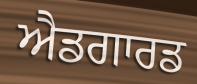
ਐਡਗਾਰਡ